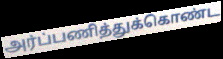
அர்ப்பணித்துக்கொண்ட